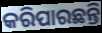
କରିପାରଛନ୍ତି